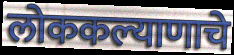
लोककल्याणाचे